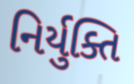
નિર્યુક્તિ